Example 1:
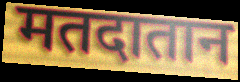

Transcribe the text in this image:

मतदातान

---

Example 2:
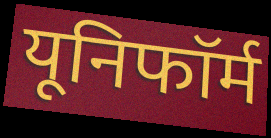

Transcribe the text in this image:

यूनिफॉर्म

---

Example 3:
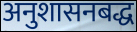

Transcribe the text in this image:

अनुशासनबद्ध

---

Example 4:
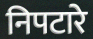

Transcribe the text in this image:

निपटारे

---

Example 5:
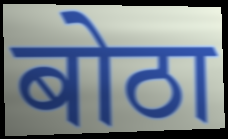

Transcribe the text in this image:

बोठा